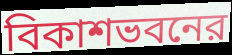
বিকাশভবনের